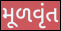
મૂળવૃંત